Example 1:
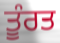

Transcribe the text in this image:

ਤੂੰਰਤ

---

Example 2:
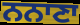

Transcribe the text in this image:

ਨਨਾਣਾ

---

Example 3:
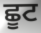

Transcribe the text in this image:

ਛੂਟ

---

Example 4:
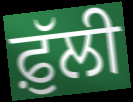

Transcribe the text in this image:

ਫ਼ੁੱਲੀ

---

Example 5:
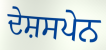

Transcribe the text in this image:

ਦੇਸ਼ਸਪੇਨ